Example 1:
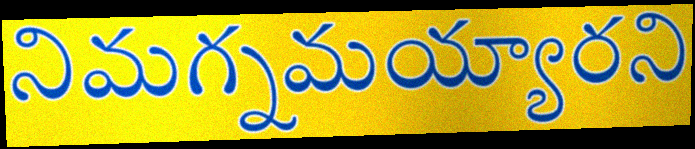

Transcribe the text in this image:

నిమగ్నమయ్యారని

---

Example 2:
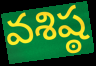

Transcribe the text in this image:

వశిష్ఠ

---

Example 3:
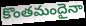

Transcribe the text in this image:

కొంతమందైనా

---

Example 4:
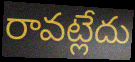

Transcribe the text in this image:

రావట్లేదు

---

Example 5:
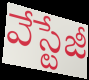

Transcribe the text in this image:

వేస్టేజీ